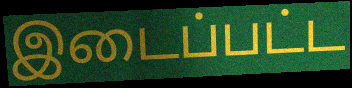
இடைப்பட்ட